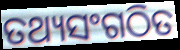
ତଥ୍ୟସଂଗଠିତ